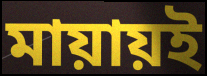
মায়ায়ই